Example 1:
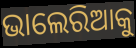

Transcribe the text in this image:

ଭାଲେରିଆକୁ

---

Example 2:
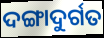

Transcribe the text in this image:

ଦଙ୍ଗାଦୁର୍ଗତ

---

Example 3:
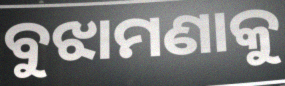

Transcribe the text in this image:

ବୁଝାମଣାକୁ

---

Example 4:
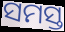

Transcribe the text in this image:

ସମସ୍ତ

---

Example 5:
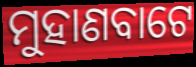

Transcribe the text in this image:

ମୁହାଣବାଟେ